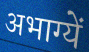
अभाग्यें